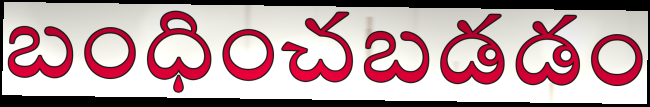
బంధించబడడం